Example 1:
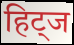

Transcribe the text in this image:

हिट्ज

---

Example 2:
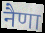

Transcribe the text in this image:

नैणा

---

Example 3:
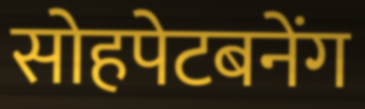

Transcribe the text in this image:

सोहपेटबनेंग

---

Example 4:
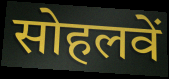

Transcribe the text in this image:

सोहलवें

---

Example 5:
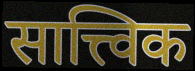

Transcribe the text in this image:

सात्त्विक